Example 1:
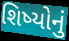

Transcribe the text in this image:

શિષ્યોનું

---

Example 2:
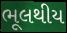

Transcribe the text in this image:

ભૂલથીય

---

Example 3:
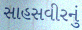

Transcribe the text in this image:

સાહસવીરનું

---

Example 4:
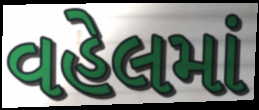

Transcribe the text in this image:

વહેલમાં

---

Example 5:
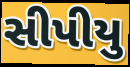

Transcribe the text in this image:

સીપીયુ